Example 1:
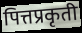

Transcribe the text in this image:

पित्तप्रकृती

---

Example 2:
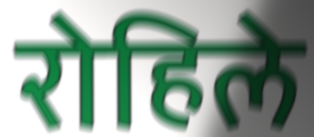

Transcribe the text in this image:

रोहिले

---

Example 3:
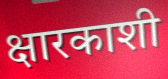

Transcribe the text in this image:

क्षारकाशी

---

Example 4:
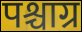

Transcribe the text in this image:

पश्चाग्र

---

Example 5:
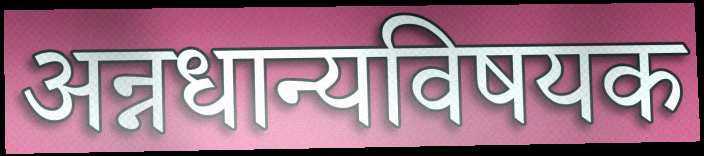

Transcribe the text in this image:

अन्नधान्यविषयक